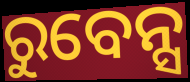
ରୁବେନ୍ସ